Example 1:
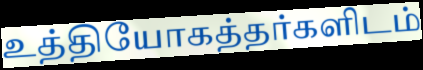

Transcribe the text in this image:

உத்தியோகத்தர்களிடம்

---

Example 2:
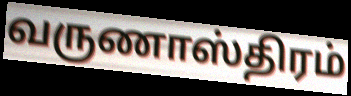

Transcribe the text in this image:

வருணாஸ்திரம்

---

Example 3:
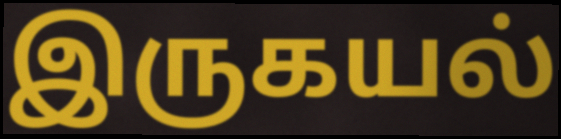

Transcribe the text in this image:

இருகயல்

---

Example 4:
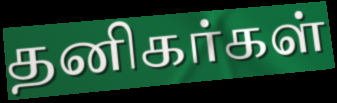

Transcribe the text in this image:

தனிகர்கள்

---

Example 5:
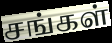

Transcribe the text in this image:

சங்கள்